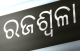
ରଜଶ୍ୱଳା